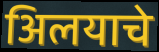
अिलयाचे